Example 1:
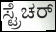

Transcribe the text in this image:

ಸ್ಟ್ರೆಚರ್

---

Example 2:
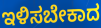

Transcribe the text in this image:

ಇಳಿಸಬೇಕಾದ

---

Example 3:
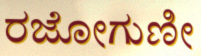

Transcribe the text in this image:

ರಜೋಗುಣೀ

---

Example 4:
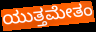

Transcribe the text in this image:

ಯುತ್ತಮೇತಂ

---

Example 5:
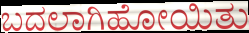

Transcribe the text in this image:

ಬದಲಾಗಿಹೋಯಿತು